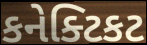
કનેક્ટિકટ